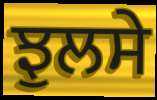
ਝੁਲਸੇ